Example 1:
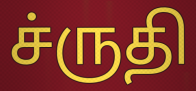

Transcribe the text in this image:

ச்ருதி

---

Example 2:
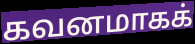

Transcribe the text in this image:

கவனமாகக்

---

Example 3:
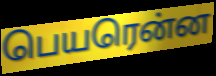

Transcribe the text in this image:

பெயரென்ன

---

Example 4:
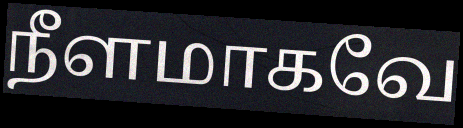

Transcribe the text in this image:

நீளமாகவே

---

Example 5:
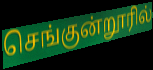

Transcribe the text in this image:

செங்குன்றூரில்